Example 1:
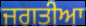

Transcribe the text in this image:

ਜਗਤੀਆ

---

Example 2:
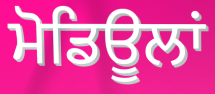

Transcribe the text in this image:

ਮੋਡਿਊਲਾਂ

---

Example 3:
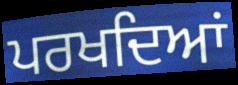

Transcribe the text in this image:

ਪਰਖਦਿਆਂ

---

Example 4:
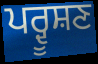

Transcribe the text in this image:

ਪਰ੍ਦੂਸ਼ਣ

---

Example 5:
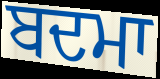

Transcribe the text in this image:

ਬਦਮਾ